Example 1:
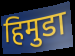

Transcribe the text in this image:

हिमुडा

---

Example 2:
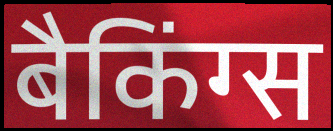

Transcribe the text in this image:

बैकिंग्स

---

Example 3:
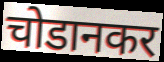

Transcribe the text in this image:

चोडानकर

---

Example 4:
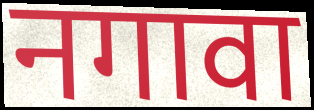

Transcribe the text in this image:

नगावा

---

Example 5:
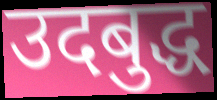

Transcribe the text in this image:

उदबुद्ध